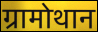
ग्रामोथान